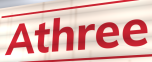
Athree